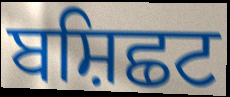
ਬਸ਼ਿਛਟ